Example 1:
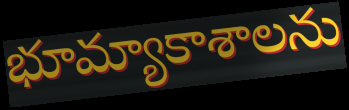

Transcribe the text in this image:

భూమ్యాకాశాలను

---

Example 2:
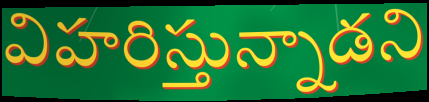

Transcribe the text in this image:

విహరిస్తున్నాడని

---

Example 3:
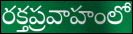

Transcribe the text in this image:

రక్తప్రవాహంలో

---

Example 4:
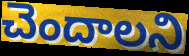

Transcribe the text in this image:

చెందాలని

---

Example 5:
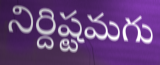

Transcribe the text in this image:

నిర్దిష్టమగు